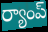
ర్యాంప్